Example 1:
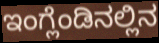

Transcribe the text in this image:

ಇಂಗ್ಲೆಂಡಿನಲ್ಲಿನ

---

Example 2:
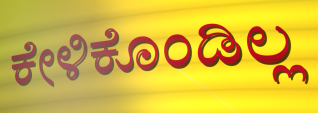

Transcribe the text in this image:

ಕೇಳಿಕೊಂಡಿಲ್ಲ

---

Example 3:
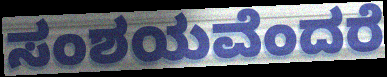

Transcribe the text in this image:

ಸಂಶಯವೆಂದರೆ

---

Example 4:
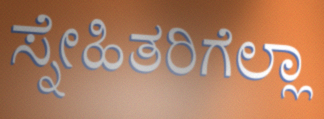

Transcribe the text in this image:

ಸ್ನೇಹಿತರಿಗೆಲ್ಲಾ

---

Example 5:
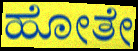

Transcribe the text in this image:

ಹೋತೇ